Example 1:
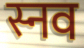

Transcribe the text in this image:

स्नव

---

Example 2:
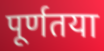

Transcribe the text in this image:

पूर्णतया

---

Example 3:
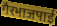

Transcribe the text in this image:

गैरभाजपाई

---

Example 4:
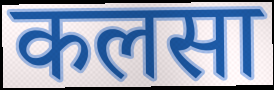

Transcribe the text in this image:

कलसा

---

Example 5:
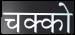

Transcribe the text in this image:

चक्को